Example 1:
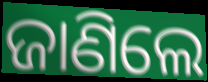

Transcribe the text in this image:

ଜାଣିଲେ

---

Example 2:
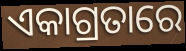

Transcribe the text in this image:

ଏକାଗ୍ରତାରେ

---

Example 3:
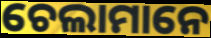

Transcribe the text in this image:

ଚେଲାମାନେ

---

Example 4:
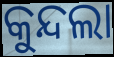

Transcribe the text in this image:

କୁନ୍ଦଲା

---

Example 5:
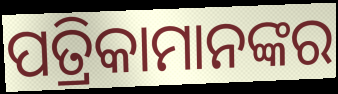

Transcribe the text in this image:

ପତ୍ରିକାମାନଙ୍କର